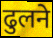
ढुलने